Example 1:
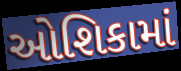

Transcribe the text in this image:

ઓશિકામાં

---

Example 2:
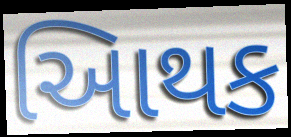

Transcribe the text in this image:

આિથક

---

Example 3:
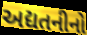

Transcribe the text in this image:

અદ્યતનીનો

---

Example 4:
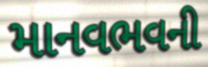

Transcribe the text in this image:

માનવભવની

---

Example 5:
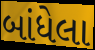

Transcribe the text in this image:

બાંધેલા